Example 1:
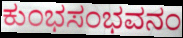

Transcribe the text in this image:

ಕುಂಭಸಂಭವನಂ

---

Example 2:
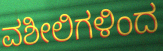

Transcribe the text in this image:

ವಶೀಲಿಗಳಿಂದ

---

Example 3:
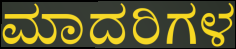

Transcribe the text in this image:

ಮಾದರಿಗಳ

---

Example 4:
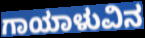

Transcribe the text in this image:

ಗಾಯಾಳುವಿನ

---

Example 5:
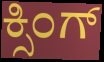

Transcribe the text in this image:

ಕ್ಸಿಂಗ್